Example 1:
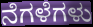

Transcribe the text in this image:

ನೆಗಳೆಗಳು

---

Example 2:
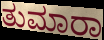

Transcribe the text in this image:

ತುಮಾರಾ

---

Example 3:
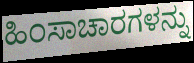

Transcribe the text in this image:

ಹಿಂಸಾಚಾರಗಳನ್ನು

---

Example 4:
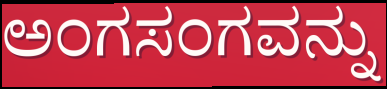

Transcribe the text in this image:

ಅಂಗಸಂಗವನ್ನು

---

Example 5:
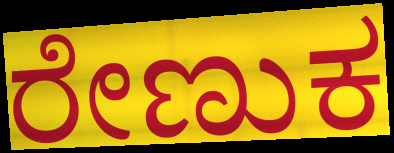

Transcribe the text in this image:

ರೇಣುಕ